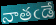
నాతఁడే